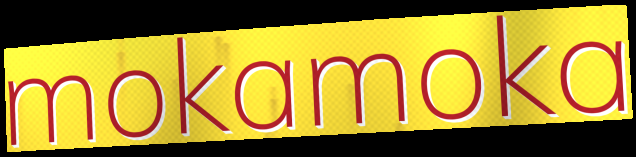
mokamoka